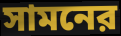
সামনের